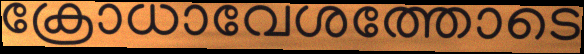
ക്രോധാവേശത്തോടെ